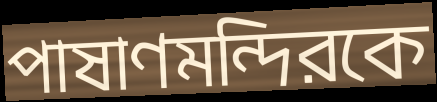
পাষাণমন্দিরকে